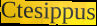
Ctesippus